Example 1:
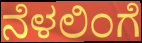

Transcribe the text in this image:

ನೆಳಲಿಂಗೆ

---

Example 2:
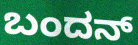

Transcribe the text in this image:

ಬಂದನ್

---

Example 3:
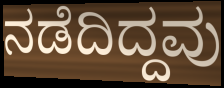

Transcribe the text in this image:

ನಡೆದಿದ್ದವು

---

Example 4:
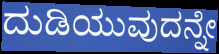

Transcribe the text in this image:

ದುಡಿಯುವುದನ್ನೇ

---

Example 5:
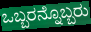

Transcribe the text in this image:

ಒಬ್ಬರನ್ನೊಬ್ಬರು